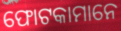
ଫୋଟକାମାନେ